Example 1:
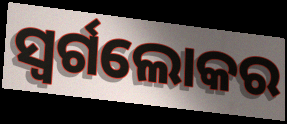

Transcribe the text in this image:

ସ୍ୱର୍ଗଲୋକର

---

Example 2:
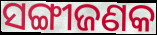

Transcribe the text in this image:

ସଙ୍ଗୀଜଣକ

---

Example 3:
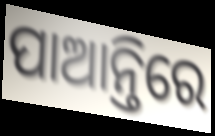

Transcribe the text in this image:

ପାଆନ୍ତିରେ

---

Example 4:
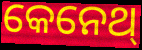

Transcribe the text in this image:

କେନେଥ୍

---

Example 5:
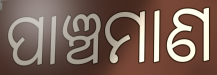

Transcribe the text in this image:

ପାଞ୍ଚମାଣ